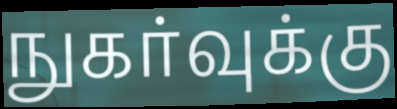
நுகர்வுக்கு